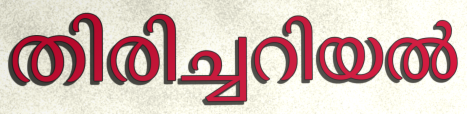
തിരിച്ചറിയൽ